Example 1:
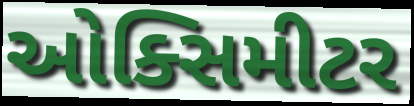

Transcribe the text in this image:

ઓક્સિમીટર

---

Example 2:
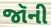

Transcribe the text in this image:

જૉની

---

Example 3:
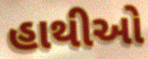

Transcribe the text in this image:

હાથીઓ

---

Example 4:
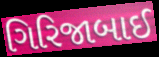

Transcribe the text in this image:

ગિરિજાબાઈ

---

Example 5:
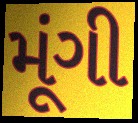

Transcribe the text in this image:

મૂંગી